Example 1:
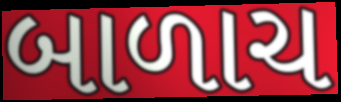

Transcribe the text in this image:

બાળાચ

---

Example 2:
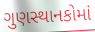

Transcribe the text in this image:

ગુણસ્થાનકોમાં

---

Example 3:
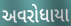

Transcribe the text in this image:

અવરોધાયા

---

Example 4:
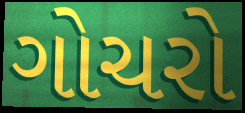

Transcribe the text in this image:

ગોચરો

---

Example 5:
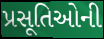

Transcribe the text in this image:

પ્રસૂતિઓની